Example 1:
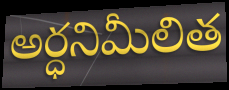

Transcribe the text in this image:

అర్ధనిమీలిత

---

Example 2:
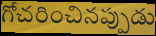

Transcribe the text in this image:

గోచరించినప్పుడు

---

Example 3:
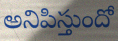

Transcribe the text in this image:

అనిపిస్తుందో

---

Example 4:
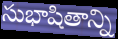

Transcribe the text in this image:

సుభాషితాన్ని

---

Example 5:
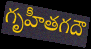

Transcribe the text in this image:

గృహీతగదౌ